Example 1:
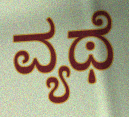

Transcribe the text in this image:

ವ್ಯಥೆ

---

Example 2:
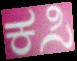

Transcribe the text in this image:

ಕಸಿ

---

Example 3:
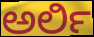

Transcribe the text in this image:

ಅರ್ಲಿ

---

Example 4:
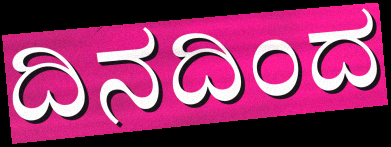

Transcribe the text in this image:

ದಿನದಿಂದ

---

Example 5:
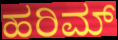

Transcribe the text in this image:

ಹರಿಮ್